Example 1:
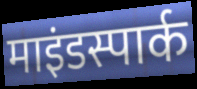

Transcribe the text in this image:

माइंडस्पार्क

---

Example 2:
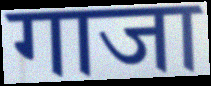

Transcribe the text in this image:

गाजा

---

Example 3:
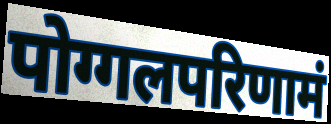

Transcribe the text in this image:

पोग्गलपरिणामं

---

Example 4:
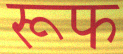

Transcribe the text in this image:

रूफ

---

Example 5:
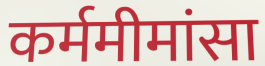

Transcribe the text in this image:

कर्ममीमांसा